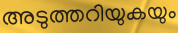
അടുത്തറിയുകയും